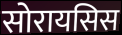
सोरायसिस